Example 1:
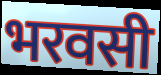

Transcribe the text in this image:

भरवसी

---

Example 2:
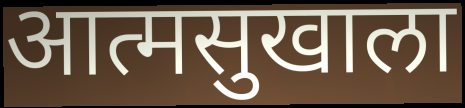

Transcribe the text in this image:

आत्मसुखाला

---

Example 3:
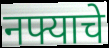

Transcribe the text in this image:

नफ्याचे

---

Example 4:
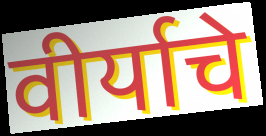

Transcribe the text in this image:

वीर्याचे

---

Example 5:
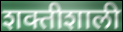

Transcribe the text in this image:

शक्तीशाली